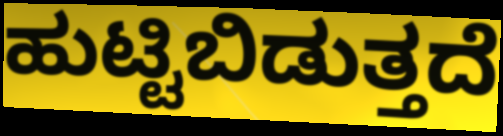
ಹುಟ್ಟಿಬಿಡುತ್ತದೆ